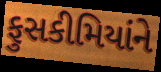
ફુસકીમિયાંને